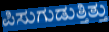
ಪಿಸುಗುಡುತ್ತಿತ್ತು